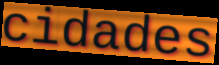
cidades